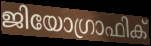
ജിയോഗ്രാഫിക്